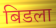
बिडला